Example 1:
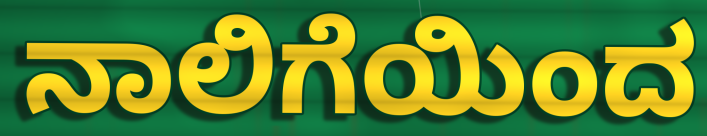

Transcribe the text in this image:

ನಾಲಿಗೆಯಿಂದ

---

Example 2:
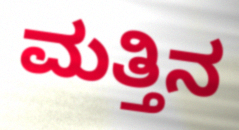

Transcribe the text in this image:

ಮತ್ತಿನ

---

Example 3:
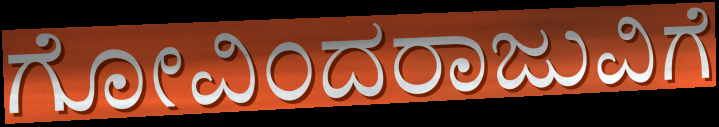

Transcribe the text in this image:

ಗೋವಿಂದರಾಜುವಿಗೆ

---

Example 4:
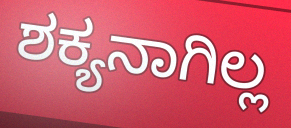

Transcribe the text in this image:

ಶಕ್ಯನಾಗಿಲ್ಲ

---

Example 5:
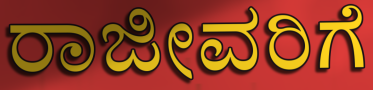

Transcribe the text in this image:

ರಾಜೀವರಿಗೆ